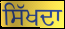
ਸਿੱਖਦਾ